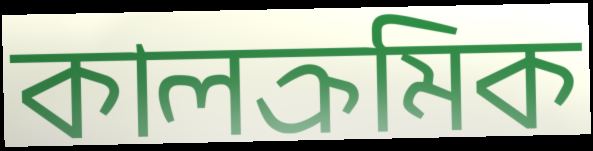
কালক্ৰমিক